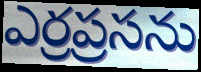
ఎర్రప్రసను